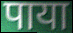
पाया